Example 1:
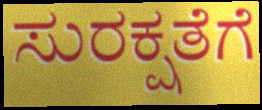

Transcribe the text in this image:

ಸುರಕ್ಷತೆಗೆ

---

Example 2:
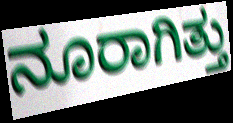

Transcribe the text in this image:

ನೂರಾಗಿತ್ತು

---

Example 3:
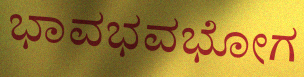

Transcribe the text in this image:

ಭಾವಭವಭೋಗ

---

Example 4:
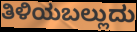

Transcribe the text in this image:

ತಿಳಿಯಬಲ್ಲುದು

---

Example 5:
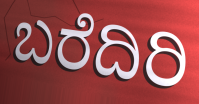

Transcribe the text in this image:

ಬರೆದಿರಿ